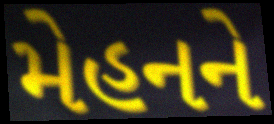
મેહનને